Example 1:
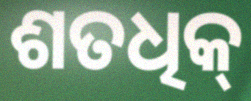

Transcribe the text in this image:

ଶତଧିକ୍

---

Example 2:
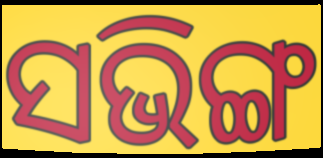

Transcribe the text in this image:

ସଭିଙ୍ଗ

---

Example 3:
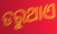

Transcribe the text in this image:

ଡରୁଥାଏ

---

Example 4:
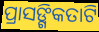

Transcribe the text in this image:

ପ୍ରାସଙ୍ଗିକତାଟି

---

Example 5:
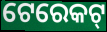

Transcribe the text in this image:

ଟେରେକଟ୍